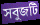
সবুজটি